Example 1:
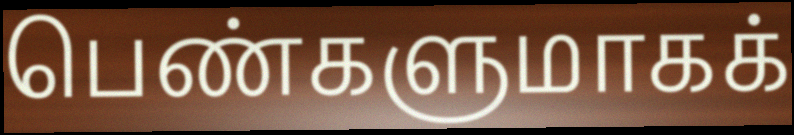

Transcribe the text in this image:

பெண்களுமாகக்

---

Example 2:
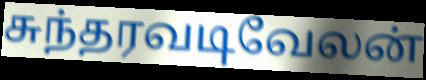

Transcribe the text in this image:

சுந்தரவடிவேலன்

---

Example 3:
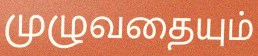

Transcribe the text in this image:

முழுவதையும்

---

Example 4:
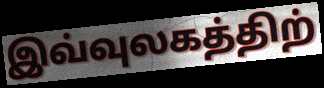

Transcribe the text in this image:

இவ்வுலகத்திற்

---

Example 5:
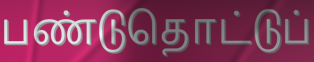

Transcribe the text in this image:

பண்டுதொட்டுப்